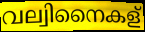
വല്വിനൈകള്